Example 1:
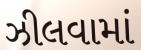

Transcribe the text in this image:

ઝીલવામાં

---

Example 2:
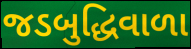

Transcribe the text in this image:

જડબુદ્ધિવાળા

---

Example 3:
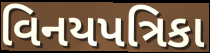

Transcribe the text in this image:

વિનયપત્રિકા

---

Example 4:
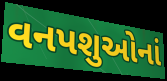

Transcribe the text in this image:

વનપશુઓનાં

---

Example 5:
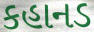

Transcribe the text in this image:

કહાનડ